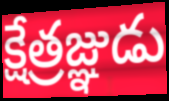
క్షేత్రజ్ఞుడు